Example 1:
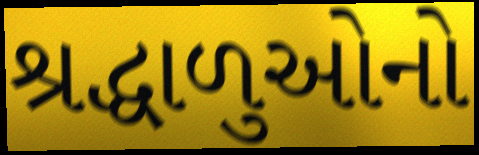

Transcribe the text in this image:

શ્રદ્ધાળુઓનો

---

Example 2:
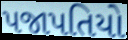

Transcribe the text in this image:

પજાપતિયો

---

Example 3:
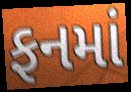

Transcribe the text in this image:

ફનમાં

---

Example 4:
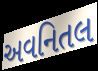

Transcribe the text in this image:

અવનિતલ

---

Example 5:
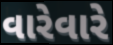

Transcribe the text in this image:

વારેવારે